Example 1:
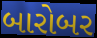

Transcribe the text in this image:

બારોબર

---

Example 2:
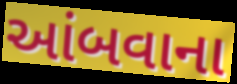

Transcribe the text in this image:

આંબવાના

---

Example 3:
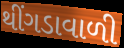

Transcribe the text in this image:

થીંગડાવાળી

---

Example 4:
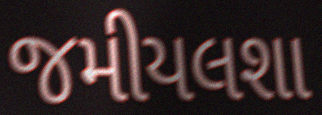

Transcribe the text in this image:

જમીયલશા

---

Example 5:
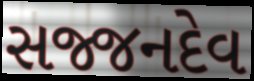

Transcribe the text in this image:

સજ્જનદેવ